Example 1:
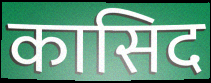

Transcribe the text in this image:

कासिद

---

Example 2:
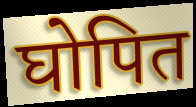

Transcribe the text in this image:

घोपित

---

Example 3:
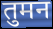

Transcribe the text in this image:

तुमन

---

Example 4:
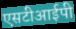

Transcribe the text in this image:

एसटीआईपी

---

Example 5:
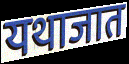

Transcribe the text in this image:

यथाजात